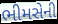
ભીમસેની